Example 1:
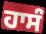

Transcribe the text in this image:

ਹਾਸੰ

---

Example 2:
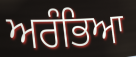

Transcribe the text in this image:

ਅਰੰਭਿਆ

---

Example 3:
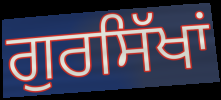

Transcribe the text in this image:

ਗੁਰਸਿੱਖਾਂ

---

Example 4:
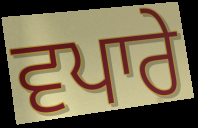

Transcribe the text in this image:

ਵਪਾਰੇ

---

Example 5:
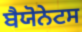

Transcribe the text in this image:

ਬੈਯੋਨੇਟਸ